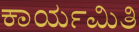
ಕಾರ್ಯಮಿತಿ